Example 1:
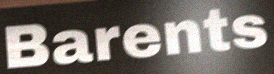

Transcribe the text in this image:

Barents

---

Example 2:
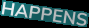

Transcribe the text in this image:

HAPPENS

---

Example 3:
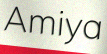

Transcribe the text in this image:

Amiya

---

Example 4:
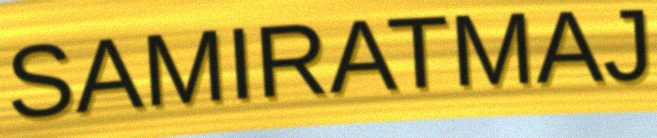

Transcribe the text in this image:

SAMIRATMAJ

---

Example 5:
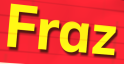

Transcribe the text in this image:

Fraz